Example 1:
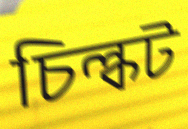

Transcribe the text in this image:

চিল্কট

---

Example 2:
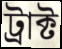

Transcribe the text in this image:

ট্রাক্ট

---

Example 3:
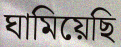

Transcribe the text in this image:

ঘামিয়েছি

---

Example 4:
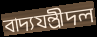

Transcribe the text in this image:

বাদ্যযন্ত্রীদল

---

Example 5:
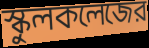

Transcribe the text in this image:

স্কুলকলেজের